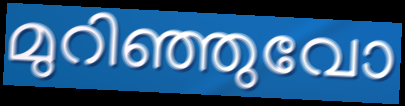
മുറിഞ്ഞുവോ